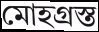
মোহগ্রস্ত